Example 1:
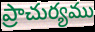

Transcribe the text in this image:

ప్రాచుర్యము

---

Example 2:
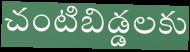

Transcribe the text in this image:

చంటిబిడ్డలకు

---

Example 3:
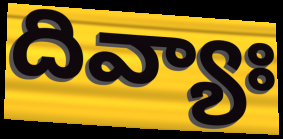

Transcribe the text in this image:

దివ్యాః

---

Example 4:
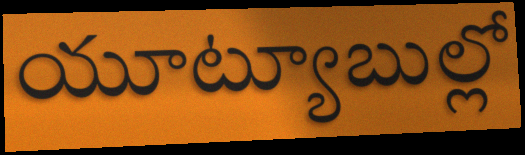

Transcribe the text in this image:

యూట్యూబుల్లో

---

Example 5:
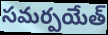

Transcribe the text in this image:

సమర్పయేత్